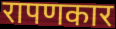
रापणकार